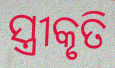
ସ୍ତ୍ରୀକୃତି